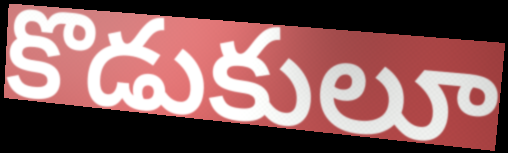
కొడుకులూ